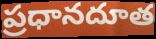
ప్రధానదూత